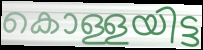
കൊള്ളയിട്ട